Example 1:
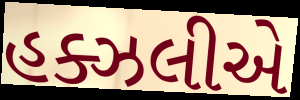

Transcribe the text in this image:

હક્ઝલીએ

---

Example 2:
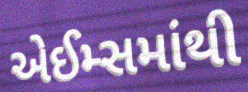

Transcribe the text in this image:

એઈમ્સમાંથી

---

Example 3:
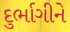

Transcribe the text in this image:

દુર્ભાગીને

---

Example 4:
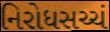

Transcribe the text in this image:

નિરોધસચ્ચં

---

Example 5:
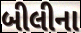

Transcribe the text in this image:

બીલીના